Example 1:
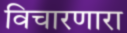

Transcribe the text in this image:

विचारणारा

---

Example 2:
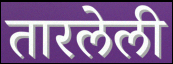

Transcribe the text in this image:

तारलेली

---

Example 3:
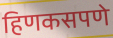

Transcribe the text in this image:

हिणकसपणे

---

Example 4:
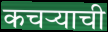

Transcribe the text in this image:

कचर्‍याची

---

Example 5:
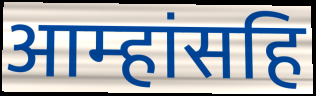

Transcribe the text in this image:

आम्हांसहि